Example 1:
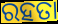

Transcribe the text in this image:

ରହତା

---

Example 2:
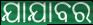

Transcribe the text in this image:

ଯାଯାବର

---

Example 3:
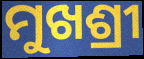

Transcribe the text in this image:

ମୁଖଶ୍ରୀ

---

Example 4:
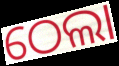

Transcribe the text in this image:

ଠେଲା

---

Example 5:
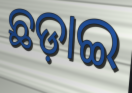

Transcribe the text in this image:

ଛଡ଼ାଇ